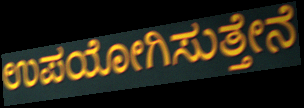
ಉಪಯೋಗಿಸುತ್ತೇನೆ